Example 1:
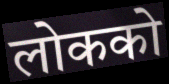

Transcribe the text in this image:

लोकको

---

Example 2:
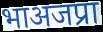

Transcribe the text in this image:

भाअजप्रा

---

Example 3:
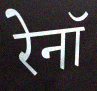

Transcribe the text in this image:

रेनॉ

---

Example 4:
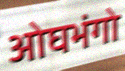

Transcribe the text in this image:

ओघभंगो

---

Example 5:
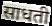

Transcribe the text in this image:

साधती